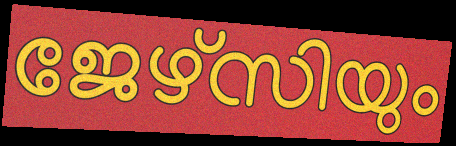
ജേഴ്സിയും